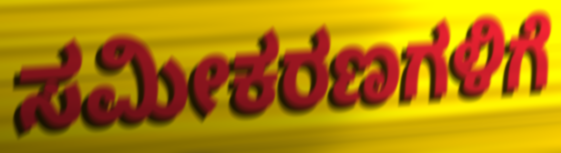
ಸಮೀಕರಣಗಳಿಗೆ